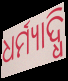
ଧର୍ମ୍ୟାଦ୍ଧି